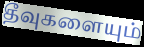
தீவுகளையும்